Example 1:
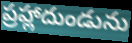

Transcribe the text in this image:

ప్రహ్లాదుండును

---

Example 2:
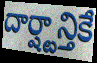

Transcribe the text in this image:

దార్ష్టాన్తికే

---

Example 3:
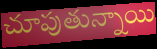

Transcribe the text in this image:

చూపుతున్నాయి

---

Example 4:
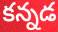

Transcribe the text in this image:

కన్నడ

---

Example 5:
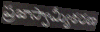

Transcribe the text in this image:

ప్రజాస్వామ్యీకరణ